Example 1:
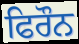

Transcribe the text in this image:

ਫਿਰੌਨ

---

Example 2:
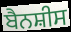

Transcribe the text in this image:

ਬੈਨਸ਼ੀਸ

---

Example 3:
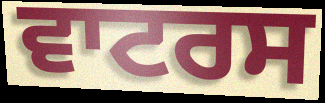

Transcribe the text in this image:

ਵਾਟਰਸ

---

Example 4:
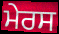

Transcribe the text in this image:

ਮੇਰਸ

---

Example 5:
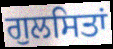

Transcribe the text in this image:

ਗੁਲਸਿਤਾਂ